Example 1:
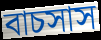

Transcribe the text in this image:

বাচসাস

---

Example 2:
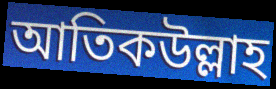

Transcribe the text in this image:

আতিকউল্লাহ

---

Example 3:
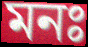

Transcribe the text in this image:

মনঃ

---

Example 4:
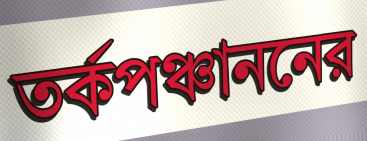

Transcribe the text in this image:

তর্কপঞ্চাননের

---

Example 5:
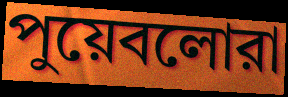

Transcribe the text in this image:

পুয়েবলোরা